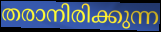
തരാനിരിക്കുന്ന